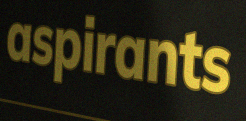
aspirants